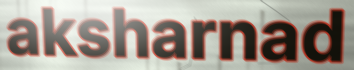
aksharnad